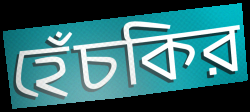
হেঁচকির